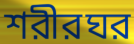
শরীরঘর